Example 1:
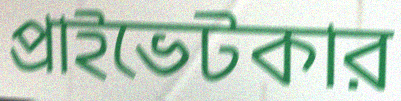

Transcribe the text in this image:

প্রাইভেটকার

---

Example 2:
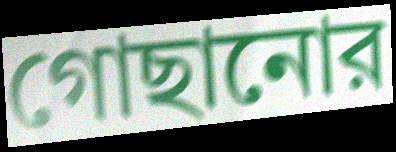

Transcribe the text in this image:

গোছানোর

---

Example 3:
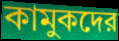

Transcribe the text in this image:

কামুকদের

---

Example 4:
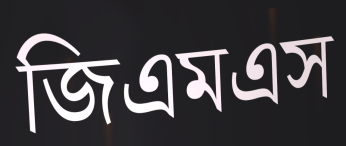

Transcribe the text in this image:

জিএমএস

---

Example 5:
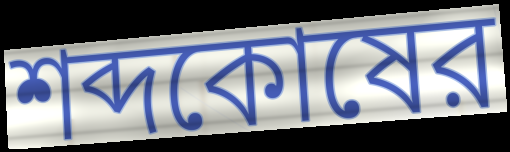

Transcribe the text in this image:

শব্দকোষের